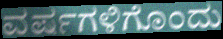
ವರ್ಷಗಳಿಗೊಂದು